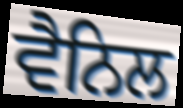
ਵੈਨਿਲ